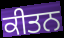
ਕੀਤਨ